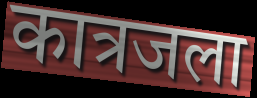
कात्रजला